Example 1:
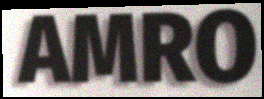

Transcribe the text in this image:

AMRO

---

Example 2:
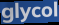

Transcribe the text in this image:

glycol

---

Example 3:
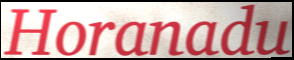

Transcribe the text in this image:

Horanadu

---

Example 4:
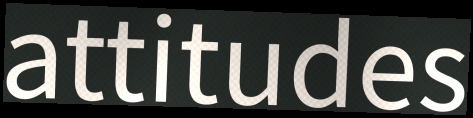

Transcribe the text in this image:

attitudes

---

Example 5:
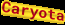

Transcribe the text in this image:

Caryota